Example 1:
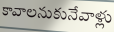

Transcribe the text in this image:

కావాలనుకునేవాళ్లు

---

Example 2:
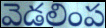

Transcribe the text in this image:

వెడలింప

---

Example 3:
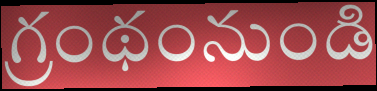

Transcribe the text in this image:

గ్రంథంనుండి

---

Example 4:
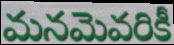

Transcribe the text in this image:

మనమెవరికీ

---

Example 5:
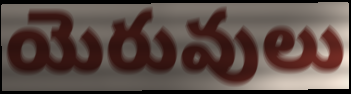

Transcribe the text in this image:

యెరువులు